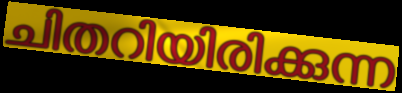
ചിതറിയിരിക്കുന്ന